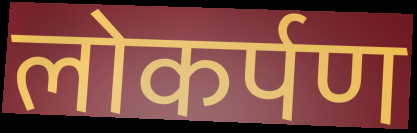
लोकर्पण